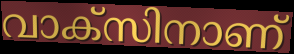
വാക്സിനാണ്